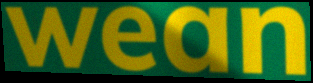
wean